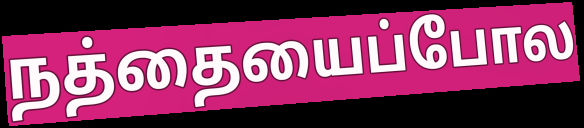
நத்தையைப்போல